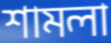
শামলা